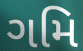
ગમિ